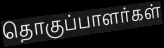
தொகுப்பாளர்கள்